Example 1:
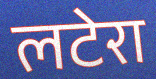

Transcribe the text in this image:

लटेरा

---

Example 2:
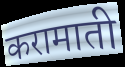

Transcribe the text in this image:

करामाती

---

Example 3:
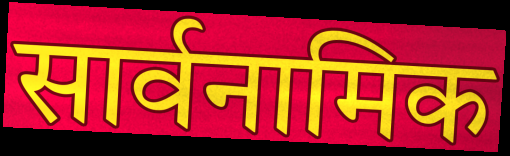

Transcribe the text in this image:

सार्वनामिक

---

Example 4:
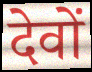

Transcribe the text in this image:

देवों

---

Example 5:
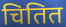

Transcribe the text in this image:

चितित